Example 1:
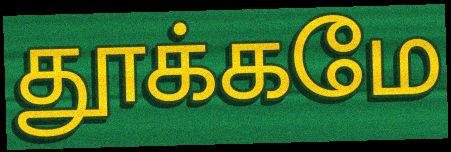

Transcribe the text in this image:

தூக்கமே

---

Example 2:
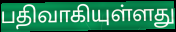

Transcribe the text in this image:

பதிவாகியுள்ளது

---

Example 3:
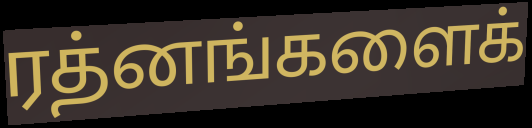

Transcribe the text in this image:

ரத்னங்களைக்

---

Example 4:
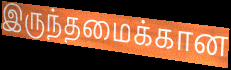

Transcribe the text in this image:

இருந்தமைக்கான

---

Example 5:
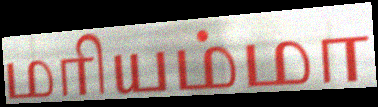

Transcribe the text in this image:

மரியம்மா